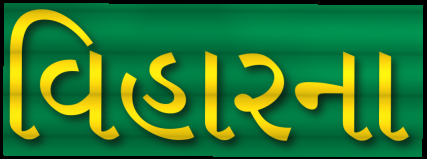
વિહારના